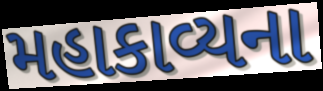
મહાકાવ્યના